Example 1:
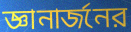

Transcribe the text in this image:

জ্ঞানার্জনের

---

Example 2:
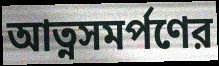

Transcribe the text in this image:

আত্নসমর্পণের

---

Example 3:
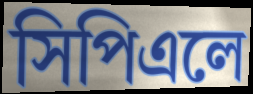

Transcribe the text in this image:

সিপিএলে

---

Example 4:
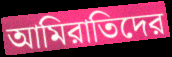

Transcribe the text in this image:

আমিরাতিদের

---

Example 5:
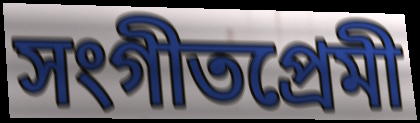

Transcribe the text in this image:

সংগীতপ্রেমী